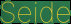
Seide